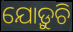
ଯୋଡ଼ୁଚି